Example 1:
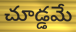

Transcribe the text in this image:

చూడ్డమే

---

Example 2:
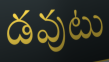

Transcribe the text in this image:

డవుటు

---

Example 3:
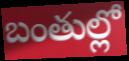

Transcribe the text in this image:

బంతుల్లో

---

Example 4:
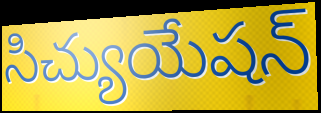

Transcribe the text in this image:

సిచ్యుయేషన్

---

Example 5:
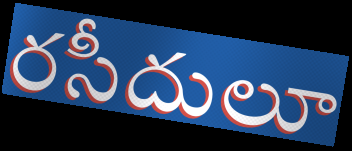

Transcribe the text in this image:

రసీదులూ